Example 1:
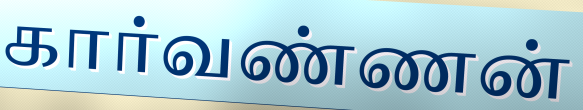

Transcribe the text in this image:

கார்வண்ணன்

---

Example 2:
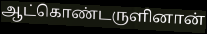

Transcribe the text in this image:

ஆட்கொண்டருளினான்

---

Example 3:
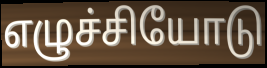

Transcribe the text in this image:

எழுச்சியோடு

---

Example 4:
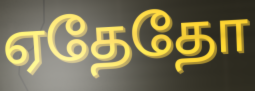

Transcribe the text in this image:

ஏதேதோ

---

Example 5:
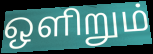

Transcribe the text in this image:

ஒளிறும்